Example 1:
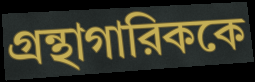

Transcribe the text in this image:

গ্রন্থাগারিককে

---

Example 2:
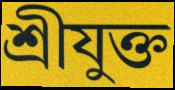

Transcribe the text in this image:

শ্রীযুক্ত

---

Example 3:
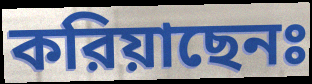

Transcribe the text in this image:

করিয়াছেনঃ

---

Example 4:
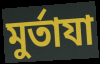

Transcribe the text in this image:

মুর্তাযা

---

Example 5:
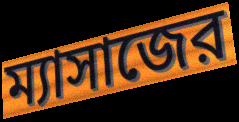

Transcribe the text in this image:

ম্যাসাজের